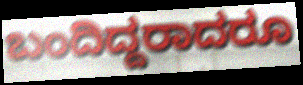
ಬಂದಿದ್ದರಾದರೂ